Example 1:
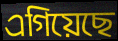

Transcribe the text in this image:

এগিয়েছে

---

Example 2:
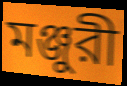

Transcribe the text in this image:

মঞ্জুরী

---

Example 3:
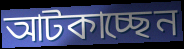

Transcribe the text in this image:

আটকাচ্ছেন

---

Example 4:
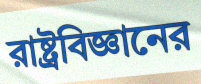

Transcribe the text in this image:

রাষ্ট্রবিজ্ঞানের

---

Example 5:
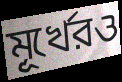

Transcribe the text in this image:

মূর্খেরও